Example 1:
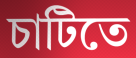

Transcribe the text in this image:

চাটিতে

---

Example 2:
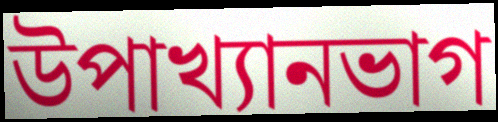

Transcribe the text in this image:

উপাখ্যানভাগ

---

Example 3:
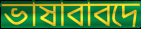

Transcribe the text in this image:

ভাষাবাবদে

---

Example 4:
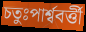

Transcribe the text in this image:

চতুঃপার্শ্ববর্ত্তী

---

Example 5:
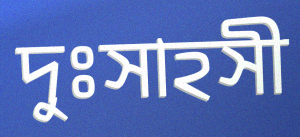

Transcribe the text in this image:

দুঃসাহসী